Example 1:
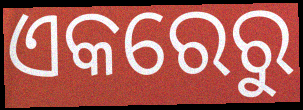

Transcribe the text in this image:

ଏକରେରୁ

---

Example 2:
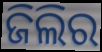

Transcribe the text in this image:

ଜିଲିର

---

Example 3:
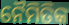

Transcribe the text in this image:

ନୈମିତିକ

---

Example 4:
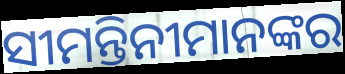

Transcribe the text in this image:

ସୀମନ୍ତିନୀମାନଙ୍କର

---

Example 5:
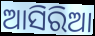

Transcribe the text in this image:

ଆସିରିଆ